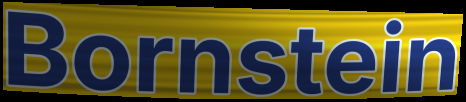
Bornstein